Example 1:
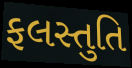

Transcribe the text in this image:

ફલસ્તુતિ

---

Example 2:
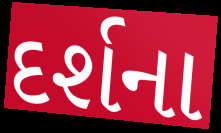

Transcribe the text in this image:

દર્શના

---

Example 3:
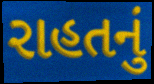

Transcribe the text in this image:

રાહતનું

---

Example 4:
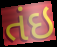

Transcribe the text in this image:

તંઇ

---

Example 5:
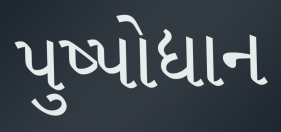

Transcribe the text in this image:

પુષ્પોદ્યાન